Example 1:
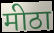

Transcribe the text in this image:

मीठा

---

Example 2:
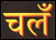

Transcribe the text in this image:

चलँ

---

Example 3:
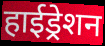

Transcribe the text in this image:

हाईड्रेशन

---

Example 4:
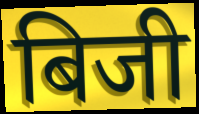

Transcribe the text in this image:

बिजी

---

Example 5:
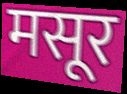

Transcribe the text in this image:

मसूर